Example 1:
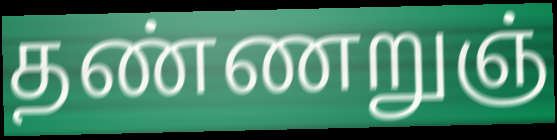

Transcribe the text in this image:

தண்ணறுஞ்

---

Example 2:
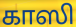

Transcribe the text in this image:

காஸி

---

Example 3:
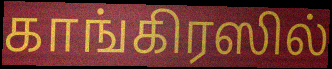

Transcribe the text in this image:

காங்கிரஸில்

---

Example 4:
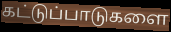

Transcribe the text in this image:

கட்டுப்பாடுகளை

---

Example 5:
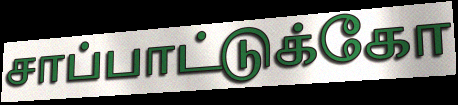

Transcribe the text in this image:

சாப்பாட்டுக்கோ